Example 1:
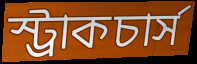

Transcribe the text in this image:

স্ট্রাকচার্স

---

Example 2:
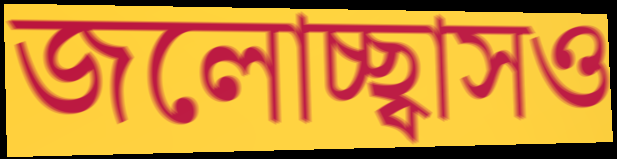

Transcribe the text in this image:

জলোচ্ছ্বাসও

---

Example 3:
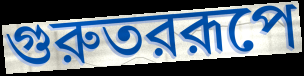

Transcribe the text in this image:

গুরুতররূপে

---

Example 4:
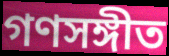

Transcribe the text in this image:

গণসঙ্গীত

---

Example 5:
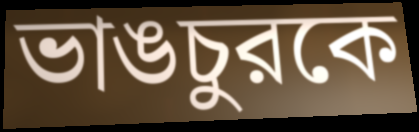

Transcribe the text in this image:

ভাঙচুরকে